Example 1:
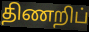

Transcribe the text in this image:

திணறிப்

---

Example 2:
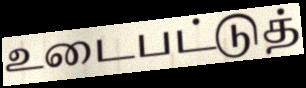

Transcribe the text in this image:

உடைபட்டுத்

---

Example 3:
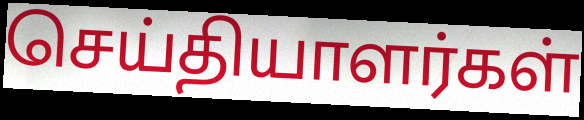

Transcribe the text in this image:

செய்தியாளர்கள்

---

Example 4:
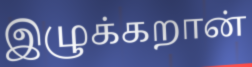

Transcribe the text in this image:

இழுக்கறான்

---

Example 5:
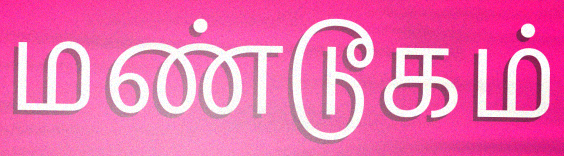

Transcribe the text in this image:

மண்டூகம்